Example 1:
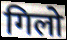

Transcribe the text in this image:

गिलो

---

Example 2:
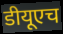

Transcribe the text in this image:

डीयूएच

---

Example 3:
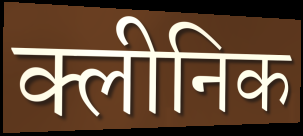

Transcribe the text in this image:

क्‍लीनिक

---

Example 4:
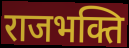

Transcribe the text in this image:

राजभक्ति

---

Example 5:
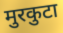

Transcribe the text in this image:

मुरकुटा